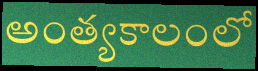
అంత్యకాలంలో